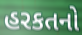
હરકતનો